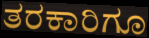
ತರಕಾರಿಗೂ